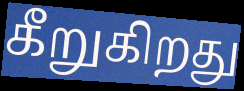
கீறுகிறது